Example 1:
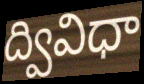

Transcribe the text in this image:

ద్వివిధా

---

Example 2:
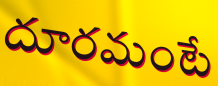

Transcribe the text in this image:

దూరమంటే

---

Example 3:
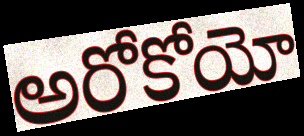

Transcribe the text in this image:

అరోకోయో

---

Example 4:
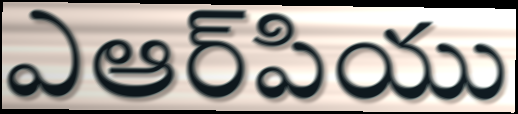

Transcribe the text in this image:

ఎఆర్‌పియు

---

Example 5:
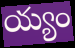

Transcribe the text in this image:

య్యం